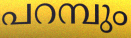
പറമ്പും